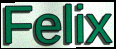
Felix